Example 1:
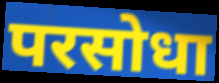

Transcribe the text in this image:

परसोधा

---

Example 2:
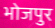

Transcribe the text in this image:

भोजपुर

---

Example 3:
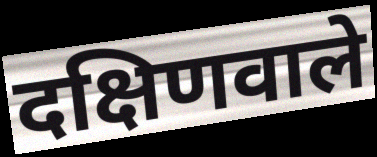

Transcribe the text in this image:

दक्षिणवाले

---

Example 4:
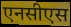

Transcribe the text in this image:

एनसीएस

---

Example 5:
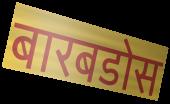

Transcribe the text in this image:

बारबडोस